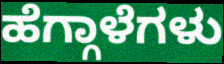
ಹೆಗ್ಗಾಳೆಗಳು